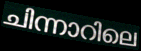
ചിന്നാറിലെ